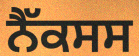
ਨੈੱਕਸਸ